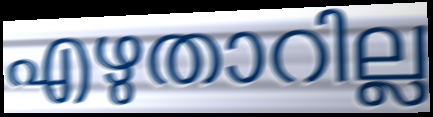
എഴുതാറില്ല